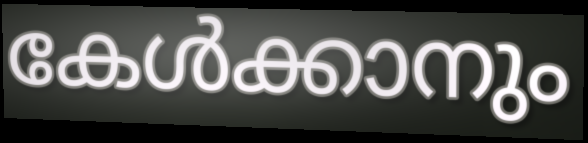
കേൾക്കാനും